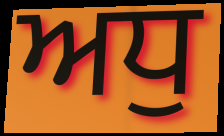
ਅਧੁ